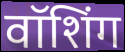
वॉशिंग